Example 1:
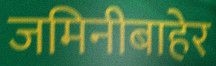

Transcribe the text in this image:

जमिनीबाहेर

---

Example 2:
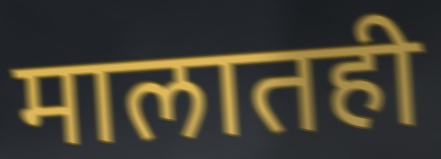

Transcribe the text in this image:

मालातही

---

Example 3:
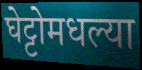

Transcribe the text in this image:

घेट्टोमधल्या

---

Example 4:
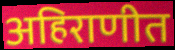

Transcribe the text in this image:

अहिराणीत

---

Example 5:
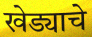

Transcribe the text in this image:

खेड्याचे